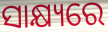
ସାକ୍ଷ୍ୟରେ